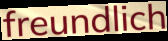
freundlich